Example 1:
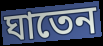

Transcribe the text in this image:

ঘাতেন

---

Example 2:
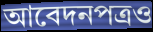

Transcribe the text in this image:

আবেদনপত্রও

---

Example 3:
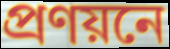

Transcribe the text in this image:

প্রণয়নে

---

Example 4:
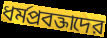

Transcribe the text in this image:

ধর্মপ্রবক্তাদের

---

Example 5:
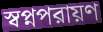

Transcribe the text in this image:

স্বপ্নপরায়ণ